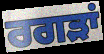
ਰਗੜਾਂ